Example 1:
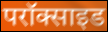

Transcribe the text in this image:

परॉक्साइड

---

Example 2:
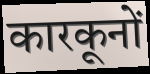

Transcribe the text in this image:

कारकूनों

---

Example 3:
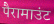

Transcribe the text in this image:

पैरामाउंट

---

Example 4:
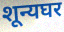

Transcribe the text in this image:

शून्यघर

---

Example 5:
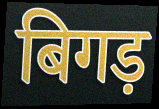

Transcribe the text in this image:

बिगड़